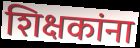
शिक्षकांना